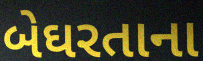
બેઘરતાના